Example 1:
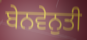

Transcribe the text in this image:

ਬੇਨਵੇਨੁਤੀ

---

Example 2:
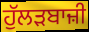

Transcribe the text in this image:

ਹੁੱਲੜਬਾਜ਼ੀ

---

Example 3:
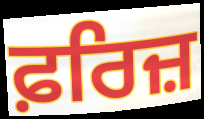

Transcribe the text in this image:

ਫ਼ਰਿਜ਼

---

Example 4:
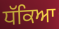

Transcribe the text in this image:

ਧੱਕਿਆ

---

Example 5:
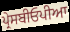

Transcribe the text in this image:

ਪ੍ਰੇਸਬੀਓਪੀਆ